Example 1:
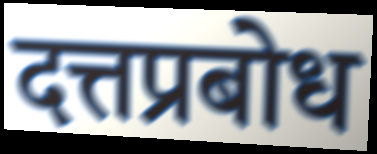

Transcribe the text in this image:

दत्तप्रबोध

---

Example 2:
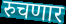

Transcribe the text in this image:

रुचणार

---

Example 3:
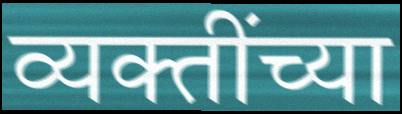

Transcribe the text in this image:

व्‍यक्‍तींच्‍या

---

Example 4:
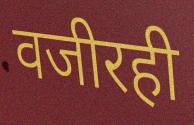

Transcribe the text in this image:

वजीरही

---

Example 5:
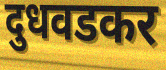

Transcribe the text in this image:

दुधवडकर